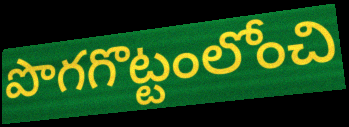
పొగగొట్టంలోంచి